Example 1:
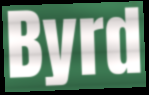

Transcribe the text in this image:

Byrd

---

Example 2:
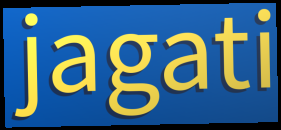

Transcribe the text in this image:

jagati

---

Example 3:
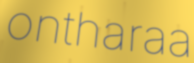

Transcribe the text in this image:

ontharaa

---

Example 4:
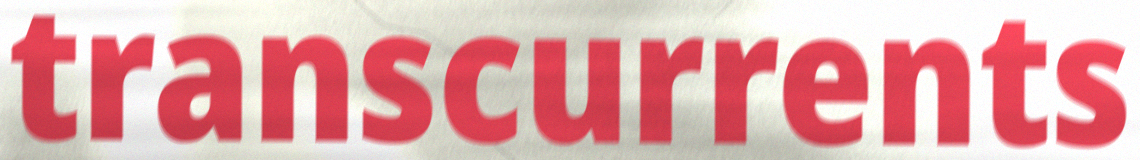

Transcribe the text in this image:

transcurrents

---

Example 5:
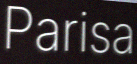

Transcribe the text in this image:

Parisa